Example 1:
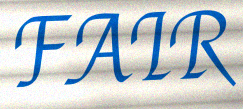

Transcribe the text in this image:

FAIR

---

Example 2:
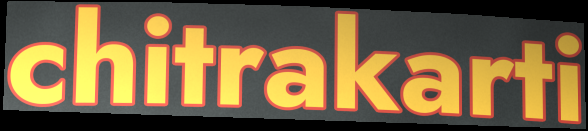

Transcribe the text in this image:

chitrakarti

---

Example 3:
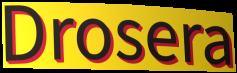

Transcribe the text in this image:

Drosera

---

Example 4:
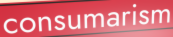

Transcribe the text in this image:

consumarism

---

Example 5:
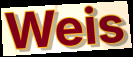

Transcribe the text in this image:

Weis